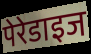
पेरेडाइज